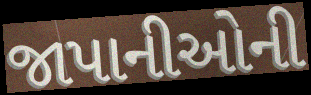
જાપાનીઓની